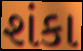
શંકા